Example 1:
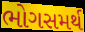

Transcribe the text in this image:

ભોગસમર્થ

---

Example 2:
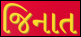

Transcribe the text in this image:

જિનાત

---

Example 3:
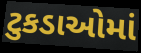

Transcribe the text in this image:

ટુકડાઓમાં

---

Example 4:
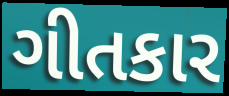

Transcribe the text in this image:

ગીતકાર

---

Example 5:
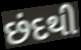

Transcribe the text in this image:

છંદથી